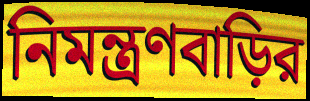
নিমন্ত্রণবাড়ির